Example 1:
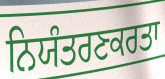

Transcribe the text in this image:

ਨਿਯੰਤਰਣਕਰਤਾ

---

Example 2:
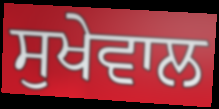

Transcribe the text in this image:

ਸੁਖੇਵਾਲ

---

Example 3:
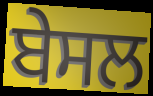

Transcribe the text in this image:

ਬੇਸਲ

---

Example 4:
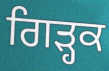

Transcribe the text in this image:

ਗਿੜ੍ਹਕ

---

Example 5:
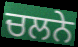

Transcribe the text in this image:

ਚਲਨੇ